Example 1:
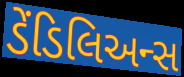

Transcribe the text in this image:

ડેંડિલિઅન્સ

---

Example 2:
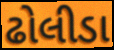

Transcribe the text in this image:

ઢોલીડા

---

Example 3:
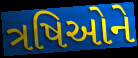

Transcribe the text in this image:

ત્રષિઓને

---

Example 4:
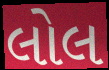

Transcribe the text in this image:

લોલ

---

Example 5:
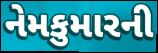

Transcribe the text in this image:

નેમકુમારની